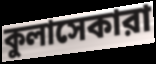
কুলাসেকারা